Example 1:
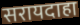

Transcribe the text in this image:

सरायदाहा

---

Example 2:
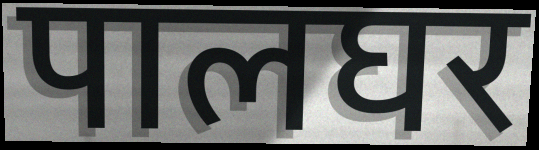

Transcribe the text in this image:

पालघर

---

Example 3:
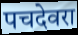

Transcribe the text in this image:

पचदेवरा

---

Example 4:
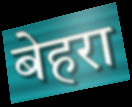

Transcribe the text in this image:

बेहरा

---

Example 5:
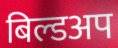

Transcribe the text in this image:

बिल्डअप